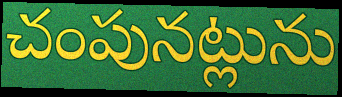
చంపునట్లును